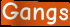
Gangs